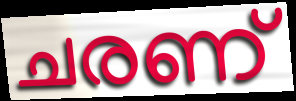
ചരണ്